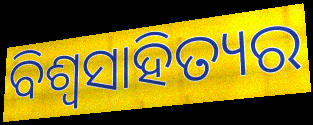
ବିଶ୍ୱସାହିତ୍ୟର